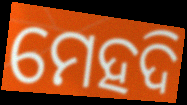
ମେହଦି